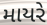
માયરે